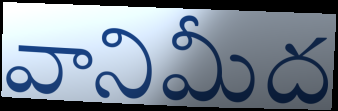
వానిమీద